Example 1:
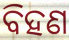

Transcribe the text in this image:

ବିହଣ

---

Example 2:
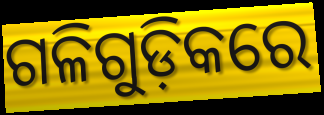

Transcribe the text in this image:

ଗଳିଗୁଡ଼ିକରେ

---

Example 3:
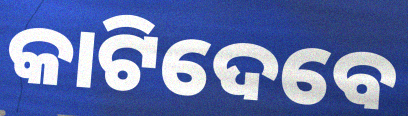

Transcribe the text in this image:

କାଟିଦେବେ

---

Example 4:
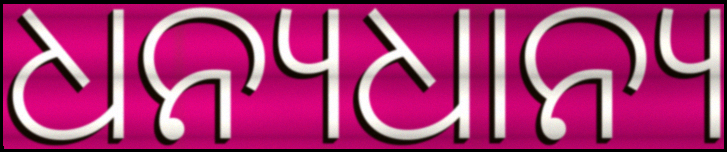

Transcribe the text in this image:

ଧନ୍ୟଧାନ୍ୟ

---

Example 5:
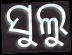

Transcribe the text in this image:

ସୁଲୁ